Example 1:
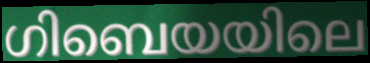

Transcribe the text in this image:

ഗിബെയയിലെ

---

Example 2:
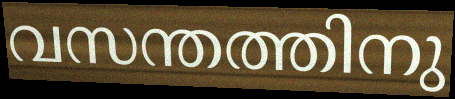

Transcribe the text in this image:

വസന്തത്തിനു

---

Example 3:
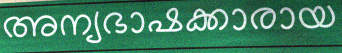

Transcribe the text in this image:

അന്യഭാഷക്കാരായ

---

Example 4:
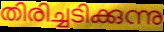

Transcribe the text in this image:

തിരിച്ചടിക്കുന്നു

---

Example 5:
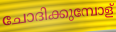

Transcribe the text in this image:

ചോദിക്കുമ്പോള്